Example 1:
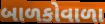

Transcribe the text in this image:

બાળકોવાળા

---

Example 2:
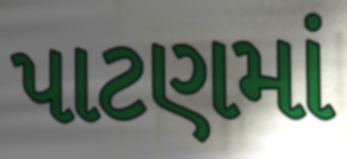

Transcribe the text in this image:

પાટણમાં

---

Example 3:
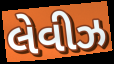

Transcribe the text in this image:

લેવીઝ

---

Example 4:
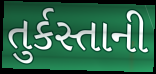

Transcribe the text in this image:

તુર્કસ્તાની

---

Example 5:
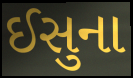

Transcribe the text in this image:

ઈસુના